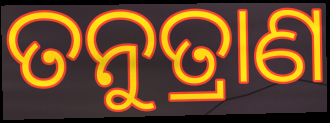
ତନୁତ୍ରାଣ